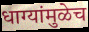
धाग्यांमुळेच